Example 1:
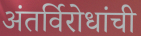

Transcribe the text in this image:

अंतर्विरोधांची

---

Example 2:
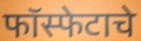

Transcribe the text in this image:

फॉस्फेटाचे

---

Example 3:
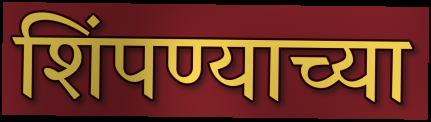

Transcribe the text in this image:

शिंपण्याच्या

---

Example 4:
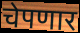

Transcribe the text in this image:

चेपणार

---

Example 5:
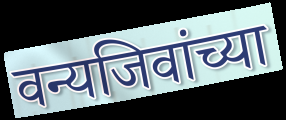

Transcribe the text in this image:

वन्यजिवांच्या